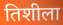
तिशीला